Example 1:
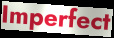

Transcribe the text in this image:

Imperfect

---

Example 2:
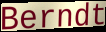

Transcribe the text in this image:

Berndt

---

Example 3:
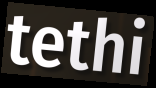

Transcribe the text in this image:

tethi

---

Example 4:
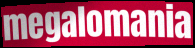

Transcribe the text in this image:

megalomania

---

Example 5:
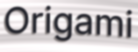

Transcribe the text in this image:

Origami